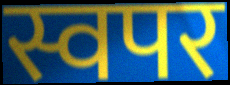
स्वपर